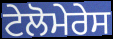
ਟੇਲੋਮੇਰੇਸ